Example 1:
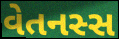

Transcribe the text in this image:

વેતનસ્સ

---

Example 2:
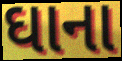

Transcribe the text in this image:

ઘાના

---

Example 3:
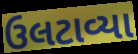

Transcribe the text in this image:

ઉલટાવ્યા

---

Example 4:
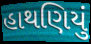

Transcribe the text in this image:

હાથણિયું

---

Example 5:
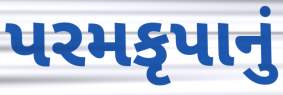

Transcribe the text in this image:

પરમકૃપાનું